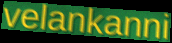
velankanni